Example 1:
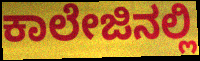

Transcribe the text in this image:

ಕಾಲೇಜಿನಲ್ಲಿ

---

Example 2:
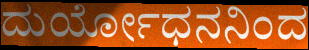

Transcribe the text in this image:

ದುರ್ಯೋಧನನಿಂದ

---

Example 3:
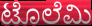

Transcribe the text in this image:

ಟೊಲೆಮಿ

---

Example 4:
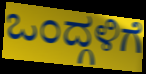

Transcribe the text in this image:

ಒಂದ್ಗಳಿಗೆ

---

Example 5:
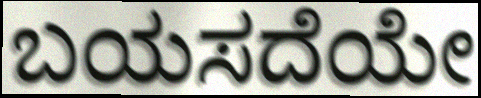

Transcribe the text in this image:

ಬಯಸದೆಯೇ